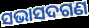
ସଭାସଦଗଣ